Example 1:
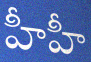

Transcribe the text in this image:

హీహీ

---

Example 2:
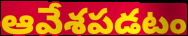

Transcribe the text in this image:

ఆవేశపడటం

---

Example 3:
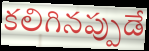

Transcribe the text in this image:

కలిగినప్పుడే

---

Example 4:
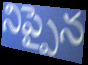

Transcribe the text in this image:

నిప్పైన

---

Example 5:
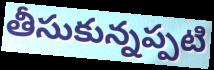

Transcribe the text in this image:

తీసుకున్నప్పటి